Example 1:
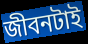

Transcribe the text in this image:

জীবনটাই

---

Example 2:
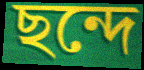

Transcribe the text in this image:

ছন্দে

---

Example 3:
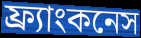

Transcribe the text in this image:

ফ্র্যাংকনেস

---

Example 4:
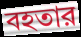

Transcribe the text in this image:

বহতার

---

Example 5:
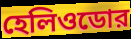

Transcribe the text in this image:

হেলিওডোর